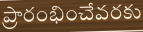
ప్రారంభించేవరకు